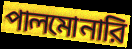
পালমোনারি